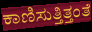
ಕಾಣಿಸುತ್ತಿತ್ತಂತೆ